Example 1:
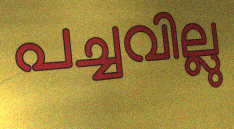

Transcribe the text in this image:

പച്ചവില്ലു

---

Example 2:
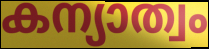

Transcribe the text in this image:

കന്യാത്വം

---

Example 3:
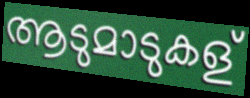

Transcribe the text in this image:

ആടുമാടുകള്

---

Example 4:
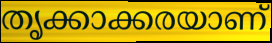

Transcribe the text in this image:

തൃക്കാക്കരയാണ്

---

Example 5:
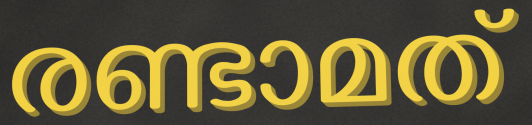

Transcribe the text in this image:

രണ്ടാമത്